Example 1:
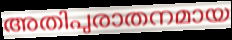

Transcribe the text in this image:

അതിപുരാതനമായ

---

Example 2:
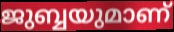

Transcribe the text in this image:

ജുബ്ബയുമാണ്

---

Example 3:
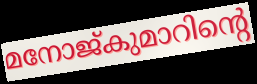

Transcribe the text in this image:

മനോജ്കുമാറിന്റെ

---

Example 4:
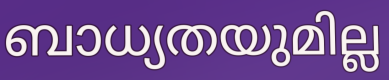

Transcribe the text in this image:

ബാധ്യതയുമില്ല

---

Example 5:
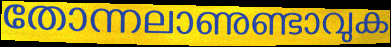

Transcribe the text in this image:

തോന്നലാണുണ്ടാവുക